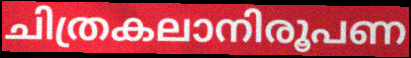
ചിത്രകലാനിരൂപണ